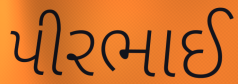
પીરભાઈ